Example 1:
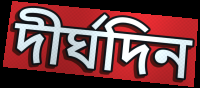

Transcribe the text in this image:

দীর্ঘদিন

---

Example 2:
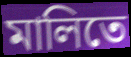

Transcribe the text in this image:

মালিতে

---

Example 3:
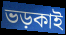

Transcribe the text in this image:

ভড়কাই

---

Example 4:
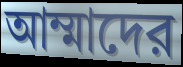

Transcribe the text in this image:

আম্মাদের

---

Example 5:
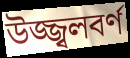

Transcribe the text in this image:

উজ্জ্বলবর্ণ